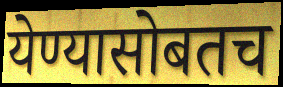
येण्यासोबतच